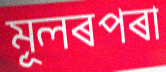
মূলৰপৰা